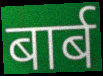
बार्ब